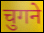
चुगने